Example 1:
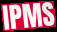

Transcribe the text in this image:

IPMS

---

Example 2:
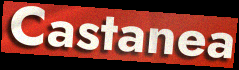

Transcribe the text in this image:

Castanea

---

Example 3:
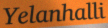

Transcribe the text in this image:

Yelanhalli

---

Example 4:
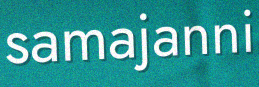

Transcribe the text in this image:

samajanni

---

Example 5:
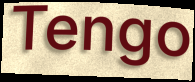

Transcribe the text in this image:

Tengo